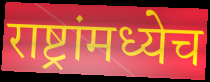
राष्ट्रांमध्येच